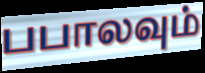
பபாலவும்